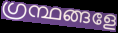
ഗ്രന്ഥങ്ങളേ